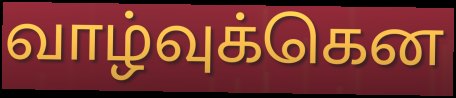
வாழ்வுக்கென